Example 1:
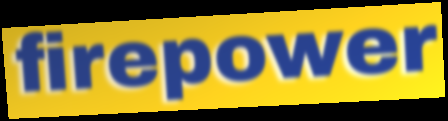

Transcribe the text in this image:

firepower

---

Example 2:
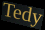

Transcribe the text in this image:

Tedy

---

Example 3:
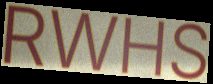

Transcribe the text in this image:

RWHS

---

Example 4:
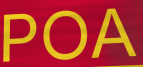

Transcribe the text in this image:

POA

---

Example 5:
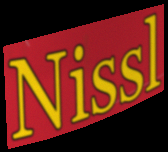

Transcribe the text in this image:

Nissl